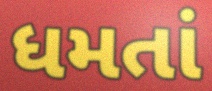
ધમતાં